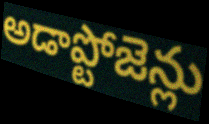
అడాప్టోజెన్లు